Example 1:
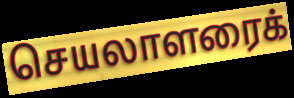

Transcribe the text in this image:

செயலாளரைக்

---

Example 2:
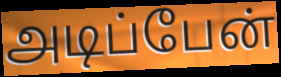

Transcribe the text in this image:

அடிப்பேன்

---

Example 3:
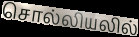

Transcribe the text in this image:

சொல்லியலில்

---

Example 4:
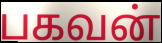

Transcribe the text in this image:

பகவன்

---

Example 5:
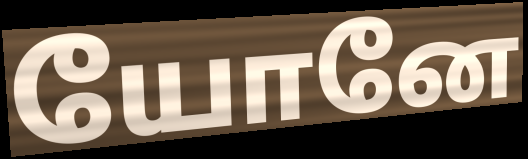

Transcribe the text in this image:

யோனே